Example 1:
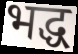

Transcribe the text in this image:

भद्ध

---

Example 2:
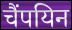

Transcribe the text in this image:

चैंपयिन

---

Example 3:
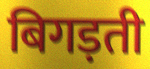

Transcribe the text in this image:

बिगड़ती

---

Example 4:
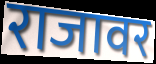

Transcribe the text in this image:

राजावर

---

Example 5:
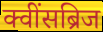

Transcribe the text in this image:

क्वींसब्रिज